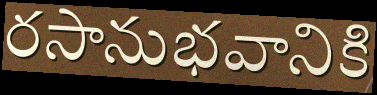
రసానుభవానికి